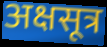
अक्षसूत्र